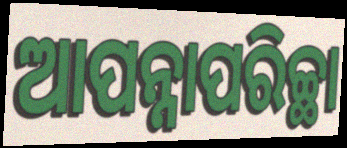
ଆପନ୍ନାପରିଚ୍ଛା